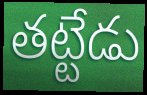
తట్టేడు